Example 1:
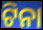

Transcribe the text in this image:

ଟିନା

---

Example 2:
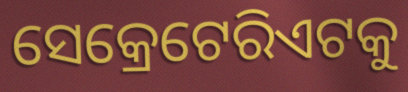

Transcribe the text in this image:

ସେକ୍ରେଟେରିଏଟକୁ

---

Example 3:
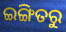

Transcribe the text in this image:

ଇଙ୍ଗିତରୁ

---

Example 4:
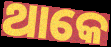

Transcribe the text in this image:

ଥାକେ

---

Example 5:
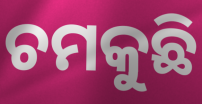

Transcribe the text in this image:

ଚମକୁଛି